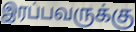
இரப்பவருக்கு